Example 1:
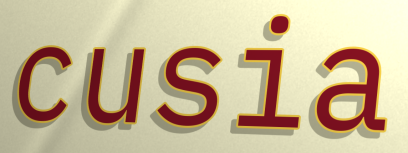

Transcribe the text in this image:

cusia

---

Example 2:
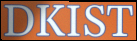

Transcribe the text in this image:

DKIST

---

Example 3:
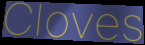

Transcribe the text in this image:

Cloves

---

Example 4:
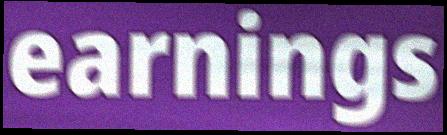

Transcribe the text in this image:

earnings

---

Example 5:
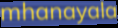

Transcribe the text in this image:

mhanayala